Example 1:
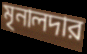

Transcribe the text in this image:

মৃনালদার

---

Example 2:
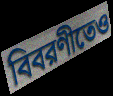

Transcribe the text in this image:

বিবরণীতেও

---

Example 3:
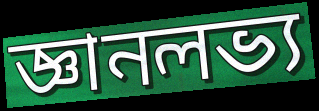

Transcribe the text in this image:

জ্ঞানলভ্য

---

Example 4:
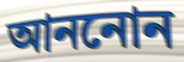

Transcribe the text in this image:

আননোন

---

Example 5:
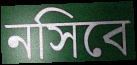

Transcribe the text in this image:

নসিবে